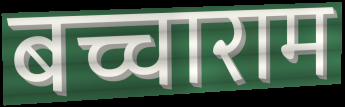
बच्चाराम